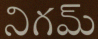
నిగమ్